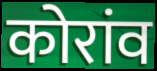
कोरांव